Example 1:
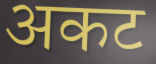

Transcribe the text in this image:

अकट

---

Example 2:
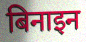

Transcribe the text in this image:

बिनाइन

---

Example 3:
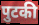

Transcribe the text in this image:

पुटकी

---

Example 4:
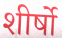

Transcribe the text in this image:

शीर्षो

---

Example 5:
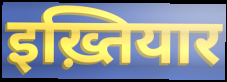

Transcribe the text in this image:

इख़्तियार